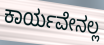
ಕಾರ್ಯವೇನಲ್ಲ